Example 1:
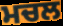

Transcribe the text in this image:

ਮਚਲ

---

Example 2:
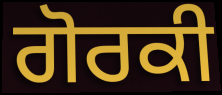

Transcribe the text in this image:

ਗੋਰਕੀ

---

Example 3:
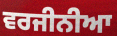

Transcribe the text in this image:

ਵਰਜੀਨੀਆ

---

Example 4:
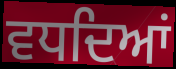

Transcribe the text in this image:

ਵਧਦਿਆਂ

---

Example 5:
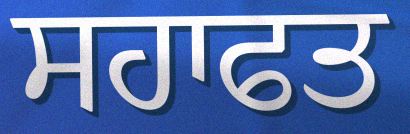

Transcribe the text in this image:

ਸਹਾਫਤ